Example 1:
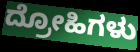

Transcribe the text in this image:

ದ್ರೋಹಿಗಳು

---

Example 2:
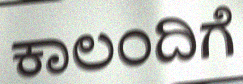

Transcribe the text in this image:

ಕಾಲಂದಿಗೆ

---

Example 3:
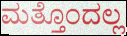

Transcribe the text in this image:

ಮತ್ತೊಂದಲ್ಲ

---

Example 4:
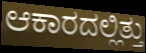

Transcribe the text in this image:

ಆಕಾರದಲ್ಲಿತ್ತು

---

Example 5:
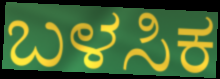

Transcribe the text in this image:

ಬಳಸಿಕ